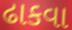
ઢાકવા